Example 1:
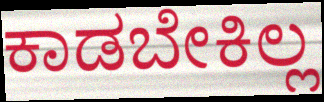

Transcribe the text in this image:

ಕಾಡಬೇಕಿಲ್ಲ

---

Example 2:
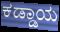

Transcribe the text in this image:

ಕಡ್ಡಾಯ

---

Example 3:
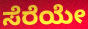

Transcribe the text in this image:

ಸೆರೆಯೇ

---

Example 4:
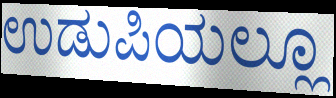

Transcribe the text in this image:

ಉಡುಪಿಯಲ್ಲೂ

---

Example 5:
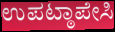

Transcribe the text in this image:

ಉಪಟ್ಠಾಪೇಸಿ